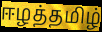
ஈழத்தமிழ்